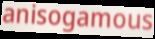
anisogamous